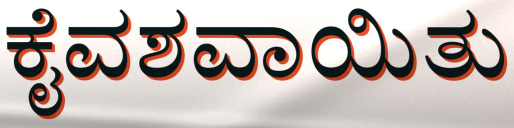
ಕೈವಶವಾಯಿತು